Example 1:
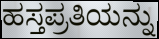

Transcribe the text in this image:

ಹಸ್ತಪ್ರತಿಯನ್ನು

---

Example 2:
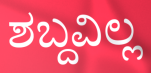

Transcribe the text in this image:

ಶಬ್ದವಿಲ್ಲ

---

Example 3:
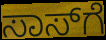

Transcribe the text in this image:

ಸಾಸ್‌ಗೆ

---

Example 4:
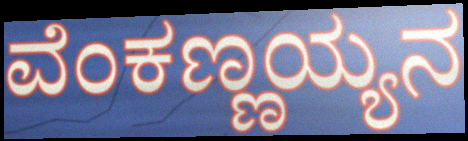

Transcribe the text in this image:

ವೆಂಕಣ್ಣಯ್ಯನ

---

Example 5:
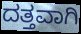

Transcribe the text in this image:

ದತ್ತವಾಗಿ